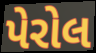
પેરોલ